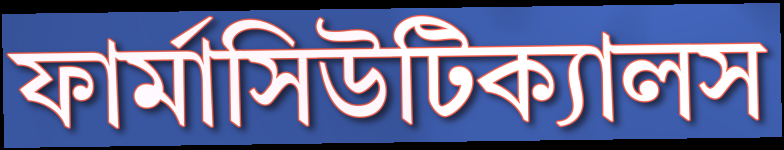
ফার্মাসিউটিক্যালস